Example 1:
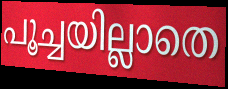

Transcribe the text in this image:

പൂച്ചയില്ലാതെ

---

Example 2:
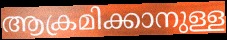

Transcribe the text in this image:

ആക്രമിക്കാനുള്ള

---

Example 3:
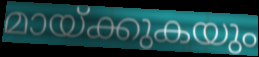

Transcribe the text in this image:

മായ്ക്കുകയും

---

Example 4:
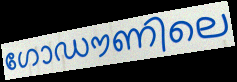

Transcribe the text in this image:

ഗോഡൗണിലെ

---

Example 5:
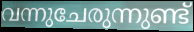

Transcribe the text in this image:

വന്നുചേരുന്നുണ്ട്